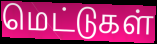
மெட்டுகள்